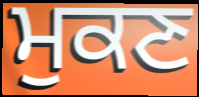
ਮੁਕਣ